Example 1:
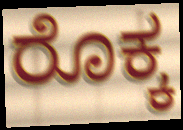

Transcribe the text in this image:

ರೊಕ್ಕ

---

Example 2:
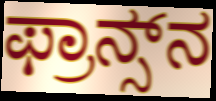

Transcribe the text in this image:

ಫ್ರಾನ್ಸ್‌ನ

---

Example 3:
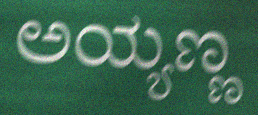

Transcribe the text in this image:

ಅಯ್ಯಣ್ಣ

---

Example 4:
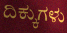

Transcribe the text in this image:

ದಿಕ್ಕುಗಳು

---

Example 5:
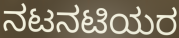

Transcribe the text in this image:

ನಟನಟಿಯರ